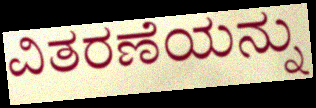
ವಿತರಣೆಯನ್ನು